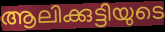
ആലിക്കുട്ടിയുടെ